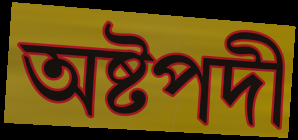
অষ্টপদী